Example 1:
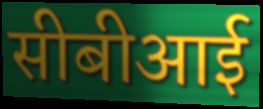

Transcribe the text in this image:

सीबीआई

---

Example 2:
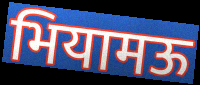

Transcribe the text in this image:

भियामऊ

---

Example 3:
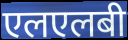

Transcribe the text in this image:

एलएलबी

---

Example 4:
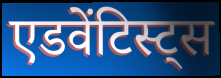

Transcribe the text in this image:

एडवेंटिस्ट्स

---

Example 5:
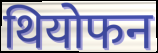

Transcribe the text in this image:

थियोफन